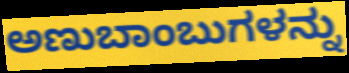
ಅಣುಬಾಂಬುಗಳನ್ನು